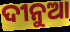
ଦୀନୁଆ